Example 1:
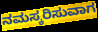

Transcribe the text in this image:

ನಮಸ್ಕರಿಸುವಾಗ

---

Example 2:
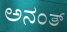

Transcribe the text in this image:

ಅನಂತ್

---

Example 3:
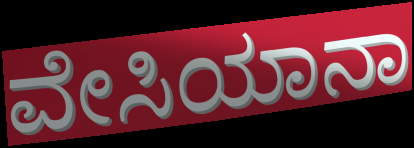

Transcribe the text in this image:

ವೇಸಿಯಾನಾ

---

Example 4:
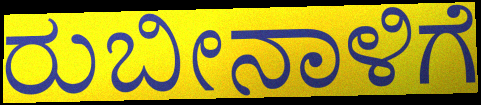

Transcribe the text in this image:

ರುಬೀನಾಳಿಗೆ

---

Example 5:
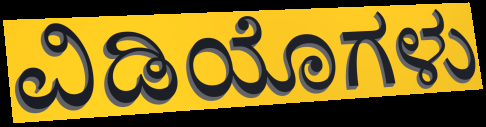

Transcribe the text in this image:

ವಿಡಿಯೊಗಳು